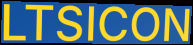
LTSICON